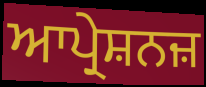
ਆਪ੍ਰੇਸ਼ਨਜ਼